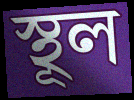
স্থূল